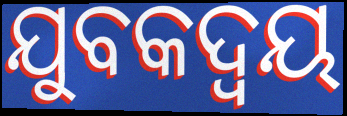
ଯୁବକଦ୍ୱୟ